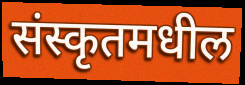
संस्कृतमधील